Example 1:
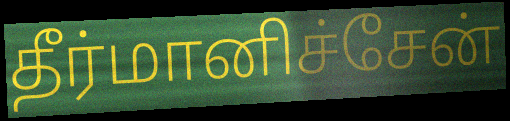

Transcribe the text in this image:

தீர்மானிச்சேன்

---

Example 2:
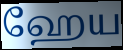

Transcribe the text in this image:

ஹேய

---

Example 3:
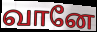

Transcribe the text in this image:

வானே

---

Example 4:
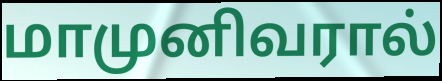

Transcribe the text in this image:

மாமுனிவரால்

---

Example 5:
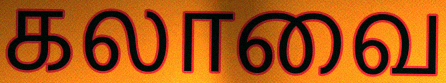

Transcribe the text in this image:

கலாவை